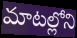
మాటల్లోని